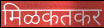
मिळकतकर